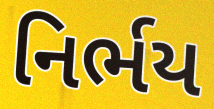
નિર્ભય